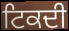
ਟਿਕਦੀ